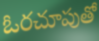
ఓరచూపుతో